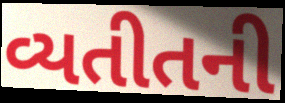
વ્યતીતની